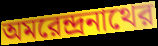
অমরেন্দ্রনাথের